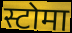
स्टोमा